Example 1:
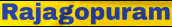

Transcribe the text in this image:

Rajagopuram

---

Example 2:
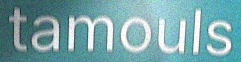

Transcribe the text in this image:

tamouls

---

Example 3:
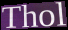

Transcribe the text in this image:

Thol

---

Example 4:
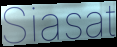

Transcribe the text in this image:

Siasat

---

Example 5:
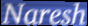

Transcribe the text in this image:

Naresh